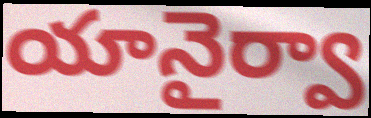
యానైర్వా